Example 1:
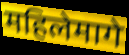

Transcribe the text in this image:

महिलेमागे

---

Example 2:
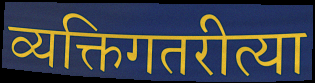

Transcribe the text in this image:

व्यक्तिगतरीत्या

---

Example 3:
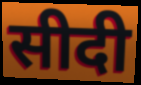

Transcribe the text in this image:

सीदी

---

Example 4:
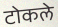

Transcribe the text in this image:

टोकले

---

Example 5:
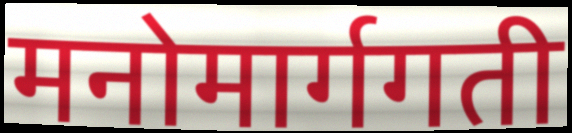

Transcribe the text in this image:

मनोमार्गगती